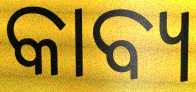
କାବ୍ୟ